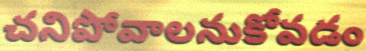
చనిపోవాలనుకోవడం